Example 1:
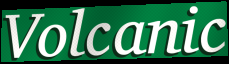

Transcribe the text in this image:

Volcanic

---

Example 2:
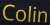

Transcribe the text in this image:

Colin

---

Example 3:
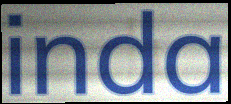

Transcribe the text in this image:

inda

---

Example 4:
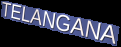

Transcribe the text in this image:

TELANGANA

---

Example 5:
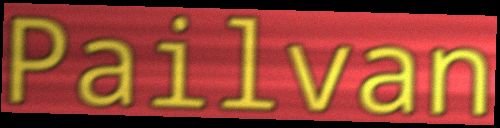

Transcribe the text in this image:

Pailvan